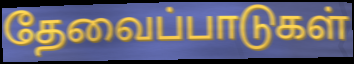
தேவைப்பாடுகள்